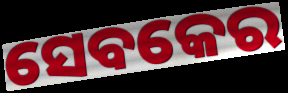
ସେବକେର